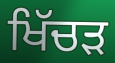
ਖਿੱਚੜ